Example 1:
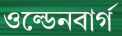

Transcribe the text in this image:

ওল্ডেনবার্গ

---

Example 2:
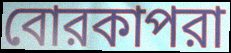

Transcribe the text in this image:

বোরকাপরা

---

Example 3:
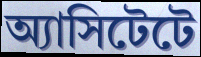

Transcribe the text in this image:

অ্যাসিটেটে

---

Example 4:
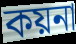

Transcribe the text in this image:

কয়না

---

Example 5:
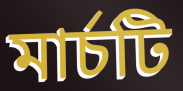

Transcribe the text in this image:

মার্চটি